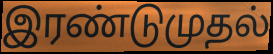
இரண்டுமுதல்